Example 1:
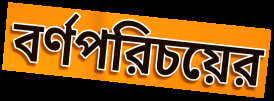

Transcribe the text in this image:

বর্ণপরিচয়ের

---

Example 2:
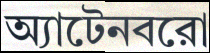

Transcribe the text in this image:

অ্যাটেনবরো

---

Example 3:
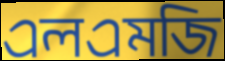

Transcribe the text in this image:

এলএমজি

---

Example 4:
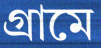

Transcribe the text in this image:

গ্রামে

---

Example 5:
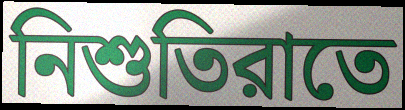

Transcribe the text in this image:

নিশুতিরাতে